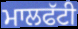
ਮਾਲਫੱਟੀ